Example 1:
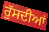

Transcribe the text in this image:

ਰੁੱਸਦੀਆਂ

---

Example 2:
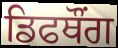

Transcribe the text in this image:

ਡਿਫਥੌਂਗ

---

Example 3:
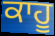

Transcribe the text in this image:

ਕਾਹੂ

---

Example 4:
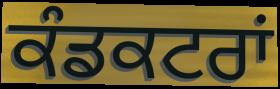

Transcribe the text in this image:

ਕੰਡਕਟਰਾਂ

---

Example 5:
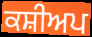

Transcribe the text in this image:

ਕਸ਼ੀਅਪ